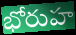
భోరుహ